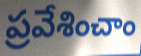
ప్రవేశించాం